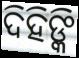
ଦିହିଙ୍କି